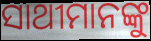
ସାଥୀମାନଙ୍କୁ